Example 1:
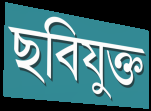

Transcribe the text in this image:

ছবিযুক্ত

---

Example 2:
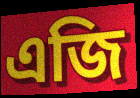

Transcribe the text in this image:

এজি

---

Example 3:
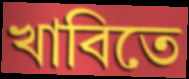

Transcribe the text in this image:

খাবিতে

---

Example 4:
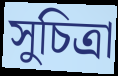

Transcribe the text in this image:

সুচিত্রা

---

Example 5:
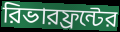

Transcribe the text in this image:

রিভারফ্রন্টের